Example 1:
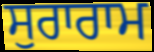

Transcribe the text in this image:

ਸੁਰਾਰਾਮ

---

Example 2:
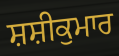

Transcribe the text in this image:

ਸ਼ਸ਼ੀਕੁਮਾਰ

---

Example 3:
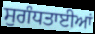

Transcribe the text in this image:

ਸੁਗੰਧਤਾਈਆਂ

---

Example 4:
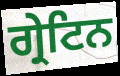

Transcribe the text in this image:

ਗ੍ਰੇਟਿਨ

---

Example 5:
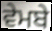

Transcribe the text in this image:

ਵੇਮਬੇ